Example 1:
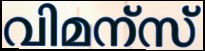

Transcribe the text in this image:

വിമന്സ്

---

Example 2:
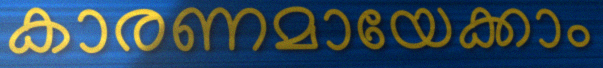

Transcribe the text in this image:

കാരണമായേക്കാം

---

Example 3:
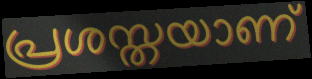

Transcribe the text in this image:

പ്രശസ്തയാണ്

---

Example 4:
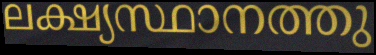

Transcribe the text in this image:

ലക്ഷ്യസ്ഥാനത്തു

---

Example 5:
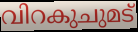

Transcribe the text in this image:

വിറകുചുമട്